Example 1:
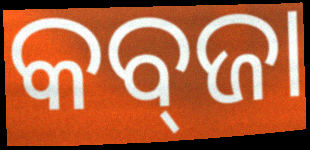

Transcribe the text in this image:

କବ୍‍ଜା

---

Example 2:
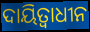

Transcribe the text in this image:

ଦାୟିତ୍ଵାଧୀନ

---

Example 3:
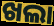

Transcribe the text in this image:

ଖଲା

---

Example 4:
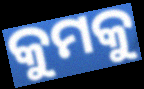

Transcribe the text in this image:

କୁମକୁ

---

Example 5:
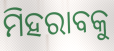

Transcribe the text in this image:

ମିହରାବକୁ